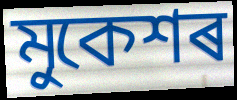
মুকেশৰ